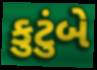
કુટુંબે